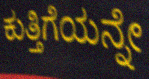
ಕುತ್ತಿಗೆಯನ್ನೇ